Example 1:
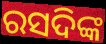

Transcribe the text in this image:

ରସଦିଙ୍କ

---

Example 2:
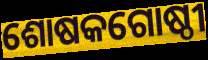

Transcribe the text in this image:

ଶୋଷକଗୋଷ୍ଠୀ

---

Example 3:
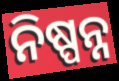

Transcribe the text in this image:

ନିଷ୍ପନ୍ନ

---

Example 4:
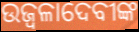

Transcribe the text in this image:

ଉଜ୍ୱଳାଦେବୀଙ୍କ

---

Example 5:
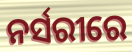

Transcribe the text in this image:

ନର୍ସରୀରେ